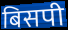
बिसपी